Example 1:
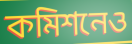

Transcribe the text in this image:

কমিশনেও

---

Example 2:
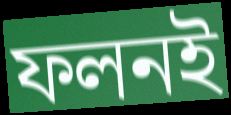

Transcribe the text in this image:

ফলনই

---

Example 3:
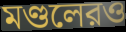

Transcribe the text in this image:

মণ্ডলেরও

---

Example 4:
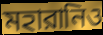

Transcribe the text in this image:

মহারানিও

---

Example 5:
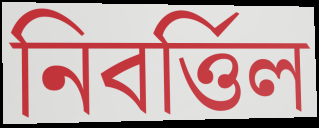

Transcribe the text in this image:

নিবর্ত্তিল